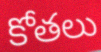
కోతలు